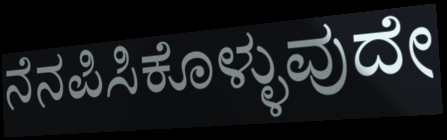
ನೆನಪಿಸಿಕೊಳ್ಳುವುದೇ